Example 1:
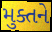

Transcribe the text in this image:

મુક્તને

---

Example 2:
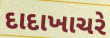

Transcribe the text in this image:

દાદાખાચરે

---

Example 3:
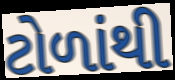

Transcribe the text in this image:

ટોળાંથી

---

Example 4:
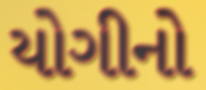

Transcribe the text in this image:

યોગીનો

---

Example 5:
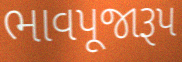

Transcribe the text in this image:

ભાવપૂજારૂપ